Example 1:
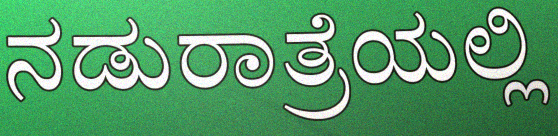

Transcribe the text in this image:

ನಡುರಾತ್ರೆಯಲ್ಲಿ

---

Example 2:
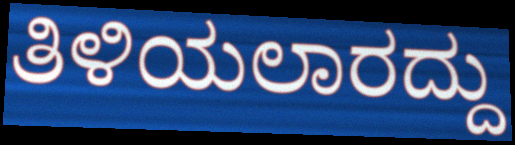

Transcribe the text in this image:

ತಿಳಿಯಲಾರದ್ದು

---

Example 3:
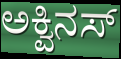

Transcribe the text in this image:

ಅಕ್ವಿನಸ್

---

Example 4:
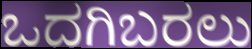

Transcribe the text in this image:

ಒದಗಿಬರಲು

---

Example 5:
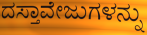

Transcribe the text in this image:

ದಸ್ತಾವೇಜುಗಳನ್ನು